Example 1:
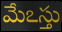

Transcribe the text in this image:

మేఽస్తు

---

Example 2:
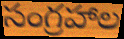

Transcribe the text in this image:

సంగ్రహాల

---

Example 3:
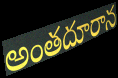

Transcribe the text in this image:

అంతదూరాన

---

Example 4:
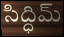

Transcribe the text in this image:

సిద్ధిమ్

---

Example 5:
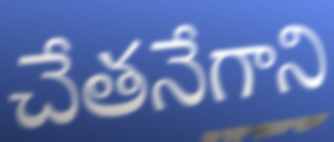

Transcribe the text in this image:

చేతనేగాని